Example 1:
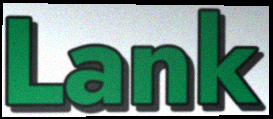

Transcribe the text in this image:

Lank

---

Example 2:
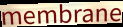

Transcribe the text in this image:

membrane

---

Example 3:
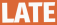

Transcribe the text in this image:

LATE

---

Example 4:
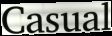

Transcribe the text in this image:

Casual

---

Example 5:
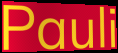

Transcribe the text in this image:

Pauli